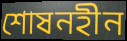
শোষনহীন